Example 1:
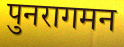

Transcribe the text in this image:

पुनरागमन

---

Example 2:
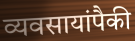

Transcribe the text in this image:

व्यवसायांपैकी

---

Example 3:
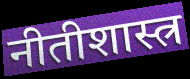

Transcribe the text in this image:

नीतीशास्त्र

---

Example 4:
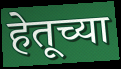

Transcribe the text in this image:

हेतूच्या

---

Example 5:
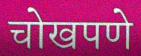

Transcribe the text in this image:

चोखपणे